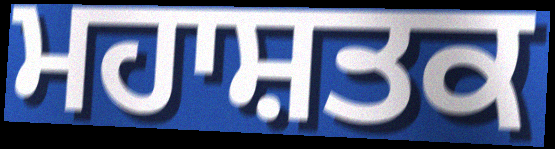
ਮਹਾਸ਼ਤਕ